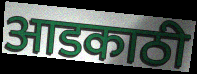
आडकाठी